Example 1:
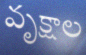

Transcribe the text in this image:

వృక్షాల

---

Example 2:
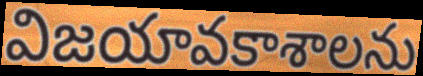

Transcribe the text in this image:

విజయావకాశాలను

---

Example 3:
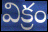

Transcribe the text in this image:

విక్రం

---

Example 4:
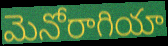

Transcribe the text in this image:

మెనోరాగియా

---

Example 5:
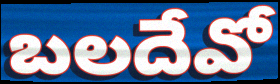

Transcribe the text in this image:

బలదేవో